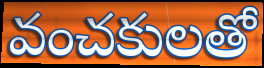
వంచకులతో